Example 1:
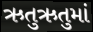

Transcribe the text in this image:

ઋતુઋતુમાં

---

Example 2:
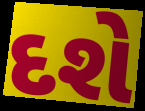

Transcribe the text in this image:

દશે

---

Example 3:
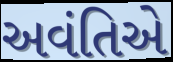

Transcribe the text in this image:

અવંતિએ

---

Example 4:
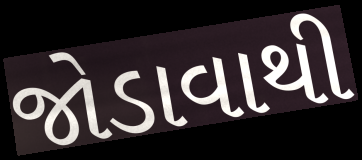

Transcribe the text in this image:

જોડાવાથી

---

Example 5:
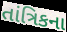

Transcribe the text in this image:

તાંત્રિકના